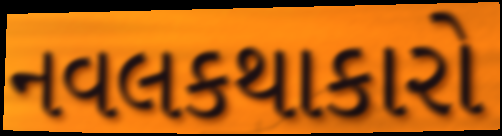
નવલકથાકારો